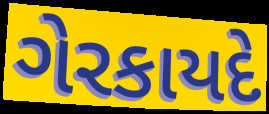
ગેરકાયદે